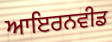
ਆਇਰਨਵੀਡ